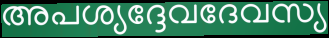
അപശ്യദ്ദേവദേവസ്യ